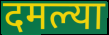
दमल्या